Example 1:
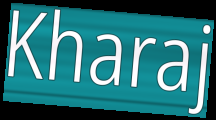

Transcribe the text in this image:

Kharaj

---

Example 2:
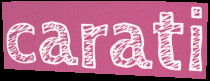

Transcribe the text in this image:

carati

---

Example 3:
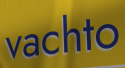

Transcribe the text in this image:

vachto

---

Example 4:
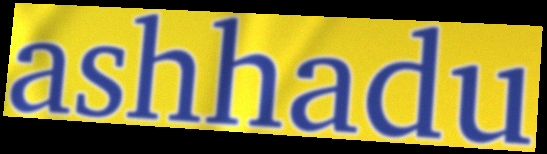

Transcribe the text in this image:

ashhadu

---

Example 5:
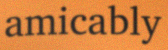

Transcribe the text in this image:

amicably